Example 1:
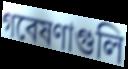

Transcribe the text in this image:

গবেষণাগুলি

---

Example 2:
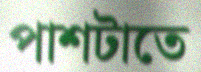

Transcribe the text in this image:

পাশটাতে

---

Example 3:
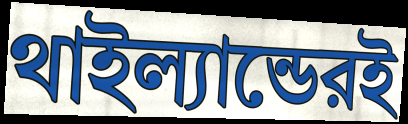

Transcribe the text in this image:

থাইল্যান্ডেরই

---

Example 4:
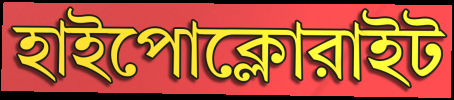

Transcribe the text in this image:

হাইপোক্লোরাইট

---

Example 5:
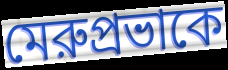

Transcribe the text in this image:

মেরুপ্রভাকে